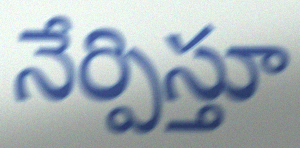
నేర్పిస్తూ